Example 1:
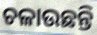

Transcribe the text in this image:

ଚଳାଉଛନ୍ତି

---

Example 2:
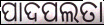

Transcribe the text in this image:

ପାଦପଲତା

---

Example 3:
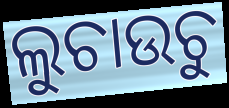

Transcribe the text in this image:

ଲୁଚାଉଚୁ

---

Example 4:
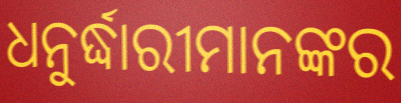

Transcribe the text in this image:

ଧନୁର୍ଦ୍ଧାରୀମାନଙ୍କର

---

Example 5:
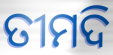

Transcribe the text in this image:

ତୀମଦି